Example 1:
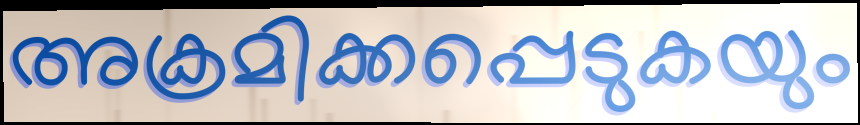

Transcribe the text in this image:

അക്രമിക്കപ്പെടുകയും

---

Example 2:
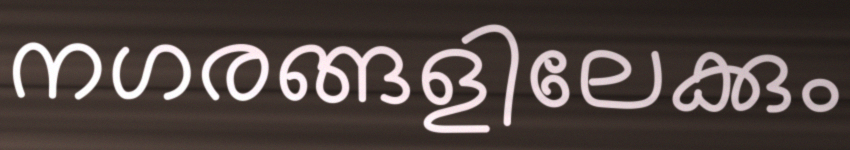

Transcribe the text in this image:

നഗരങ്ങളിലേക്കും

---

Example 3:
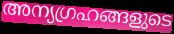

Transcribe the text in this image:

അന്യഗ്രഹങ്ങളുടെ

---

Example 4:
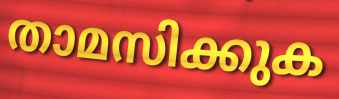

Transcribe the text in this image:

താമസിക്കുക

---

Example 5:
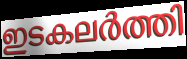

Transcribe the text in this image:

ഇടകലർത്തി